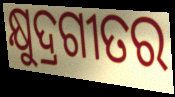
କ୍ଷୁଦ୍ରଗୀତର